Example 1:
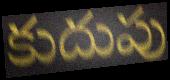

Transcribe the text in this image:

కుదుపు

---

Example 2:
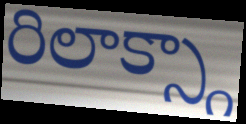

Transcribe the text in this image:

రిలాక్స్గా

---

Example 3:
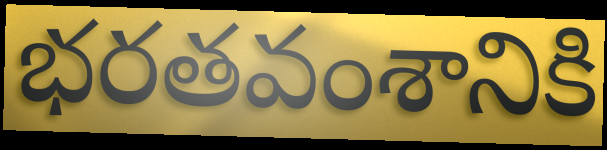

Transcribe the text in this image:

భరతవంశానికి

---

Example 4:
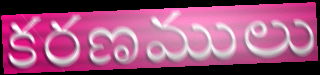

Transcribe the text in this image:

కరణములు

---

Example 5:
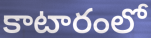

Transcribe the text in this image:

కాటారంలో